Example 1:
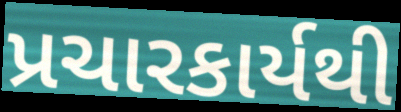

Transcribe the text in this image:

પ્રચારકાર્યથી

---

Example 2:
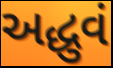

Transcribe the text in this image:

અદ્ધુવં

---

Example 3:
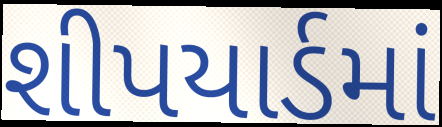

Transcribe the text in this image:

શીપયાર્ડમાં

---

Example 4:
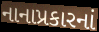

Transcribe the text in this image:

નાનાપ્રકારનાં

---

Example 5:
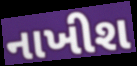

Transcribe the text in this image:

નાખીશ